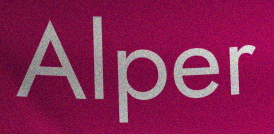
Alper